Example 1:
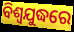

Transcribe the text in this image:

ବିଶ୍ଵଯୁଦ୍ଧରେ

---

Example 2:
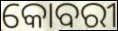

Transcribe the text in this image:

କୋବରୀ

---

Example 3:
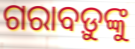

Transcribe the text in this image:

ଗରାବଡ଼ୁଙ୍କୁ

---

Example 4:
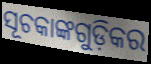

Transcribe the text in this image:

ସୂଚକାଙ୍କଗୁଡ଼ିକର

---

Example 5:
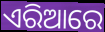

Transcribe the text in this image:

ଏରିଆରେ